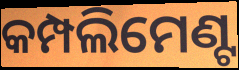
କମ୍ପଲିମେଣ୍ଟ